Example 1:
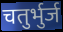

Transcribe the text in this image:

चतुर्भुर्ज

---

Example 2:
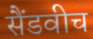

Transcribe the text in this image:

सैंडवीच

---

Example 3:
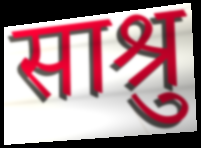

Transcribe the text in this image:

साश्रु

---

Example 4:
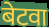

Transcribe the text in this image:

बेटवा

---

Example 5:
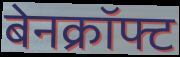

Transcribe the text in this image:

बेनक्रॉफ्ट